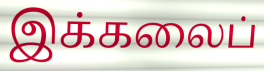
இக்கலைப்